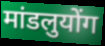
मांडलुयोंग